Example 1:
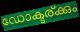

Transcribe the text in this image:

ഡോക്ടര്ക്കും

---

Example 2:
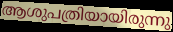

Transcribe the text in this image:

ആശുപത്രിയായിരുന്നു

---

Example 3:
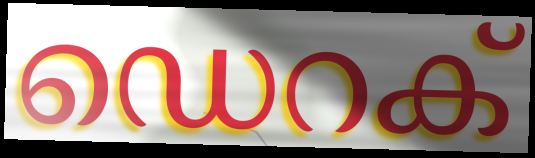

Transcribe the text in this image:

ഡെറക്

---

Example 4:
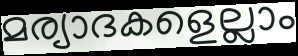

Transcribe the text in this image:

മര്യാദകളെല്ലാം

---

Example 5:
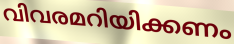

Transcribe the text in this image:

വിവരമറിയിക്കണം